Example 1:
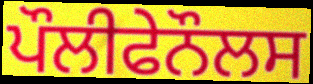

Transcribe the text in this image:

ਪੌਲੀਫੇਨੌਲਸ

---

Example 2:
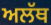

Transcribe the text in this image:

ਅਲੱਥ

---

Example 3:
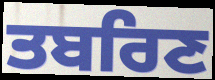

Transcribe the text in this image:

ਤਬਰਿਣ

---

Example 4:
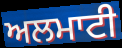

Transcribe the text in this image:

ਅਲਮਾਟੀ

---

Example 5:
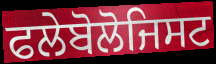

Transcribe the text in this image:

ਫਲੇਬੋਲੋਜਿਸਟ